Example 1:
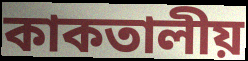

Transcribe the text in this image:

কাকতালীয়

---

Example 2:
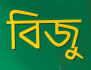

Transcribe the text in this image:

বিজু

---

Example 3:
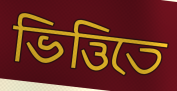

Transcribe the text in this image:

ভিত্তিতে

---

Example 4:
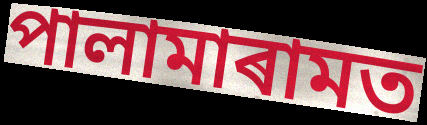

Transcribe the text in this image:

পালামাৰামত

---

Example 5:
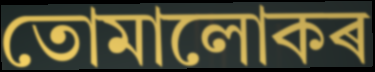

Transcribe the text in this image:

তোমালোকৰ